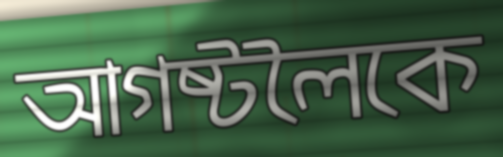
আগষ্টলৈকে